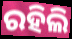
ରହିଲି